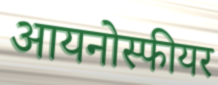
आयनोस्फीयर